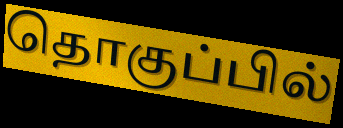
தொகுப்பில்